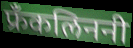
फ्रँकलिननी